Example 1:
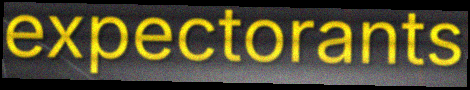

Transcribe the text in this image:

expectorants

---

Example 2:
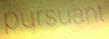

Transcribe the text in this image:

pursuant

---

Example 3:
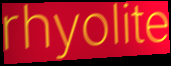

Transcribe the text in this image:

rhyolite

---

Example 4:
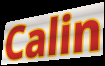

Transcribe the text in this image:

Calin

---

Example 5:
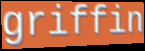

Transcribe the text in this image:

griffin